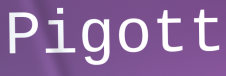
Pigott